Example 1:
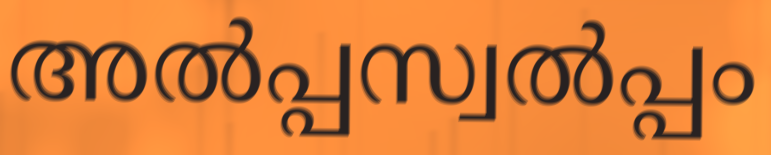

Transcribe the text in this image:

അൽപ്പസ്വൽപ്പം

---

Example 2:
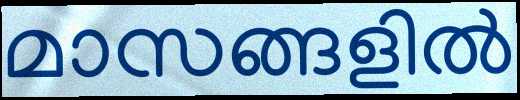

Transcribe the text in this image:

മാസങ്ങളിൽ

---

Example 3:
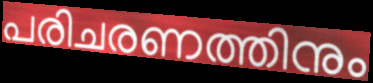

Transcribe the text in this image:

പരിചരണത്തിനും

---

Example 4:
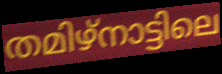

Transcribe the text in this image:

തമിഴ്നാട്ടിലെ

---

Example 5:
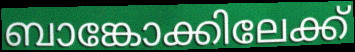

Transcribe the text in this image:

ബാങ്കോക്കിലേക്ക്